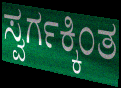
ಸ್ವರ್ಗಕ್ಕಿಂತ